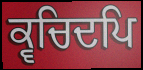
ਕ੍ਵਚਿਦਪਿ